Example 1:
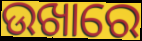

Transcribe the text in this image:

ଉଖାରେ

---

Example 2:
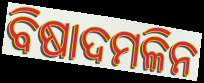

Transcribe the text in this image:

ବିଷାଦମଳିନ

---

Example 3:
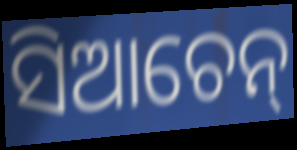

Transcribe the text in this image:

ସିଆଚେନ୍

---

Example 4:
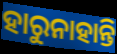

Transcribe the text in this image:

ହାରୁନାହାନ୍ତି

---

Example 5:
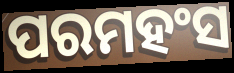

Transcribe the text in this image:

ପରମହଂସ